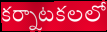
కర్నాటకలలో